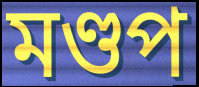
মণ্ডপ